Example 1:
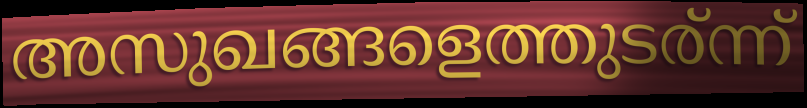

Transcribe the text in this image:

അസുഖങ്ങളെത്തുടര്ന്ന്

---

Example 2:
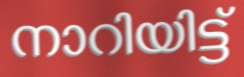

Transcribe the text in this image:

നാറിയിട്ട്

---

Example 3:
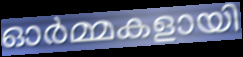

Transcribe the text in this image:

ഓർമ്മകളായി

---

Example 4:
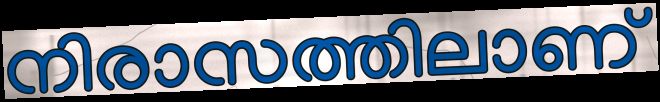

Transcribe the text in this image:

നിരാസത്തിലാണ്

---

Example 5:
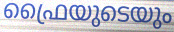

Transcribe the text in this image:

ഫ്രൈയുടെയും